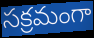
సక్రమంగా